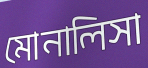
মোনালিসা